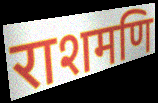
राशमणि